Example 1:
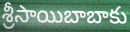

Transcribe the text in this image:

శ్రీసాయిబాబాకు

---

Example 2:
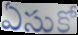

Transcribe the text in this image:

ఏసుకో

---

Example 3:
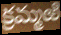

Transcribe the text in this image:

క్రమ్మఱి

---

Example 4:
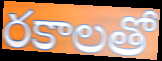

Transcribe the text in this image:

రకాలతో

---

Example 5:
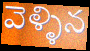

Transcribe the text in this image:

వెళ్ళిన